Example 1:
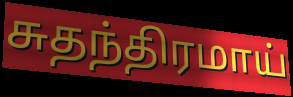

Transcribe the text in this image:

சுதந்திரமாய்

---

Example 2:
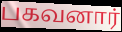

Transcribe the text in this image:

பகவனார்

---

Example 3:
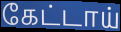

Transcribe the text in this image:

கேட்டாய்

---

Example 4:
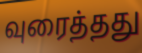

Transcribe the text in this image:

வுரைத்தது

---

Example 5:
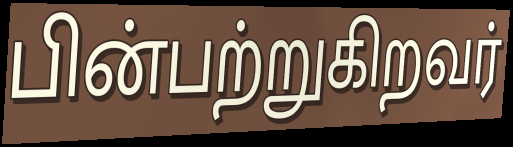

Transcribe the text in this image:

பின்பற்றுகிறவர்